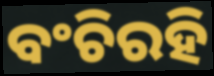
ବଂଚିରହି